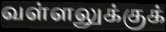
வள்ளலுக்குக்